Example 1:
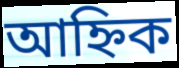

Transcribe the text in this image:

আহ্নিক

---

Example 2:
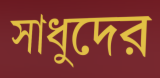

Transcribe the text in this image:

সাধুদের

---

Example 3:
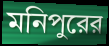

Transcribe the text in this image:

মনিপুরের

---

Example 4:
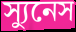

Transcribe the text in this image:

স্যুনেস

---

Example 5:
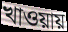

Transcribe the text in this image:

খাওয়ায়